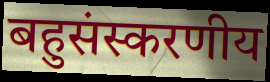
बहुसंस्करणीय